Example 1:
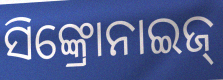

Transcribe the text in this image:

ସିଙ୍କ୍ରୋନାଇଜ୍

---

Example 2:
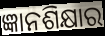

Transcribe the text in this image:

ଜ୍ଞାନଶିକ୍ଷାର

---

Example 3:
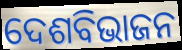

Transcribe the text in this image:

ଦେଶବିଭାଜନ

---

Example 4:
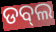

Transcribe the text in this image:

ଡବ୍‌ଲ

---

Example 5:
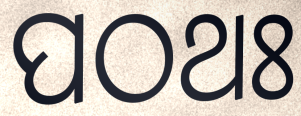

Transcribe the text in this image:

ପଠଥଃ